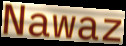
Nawaz